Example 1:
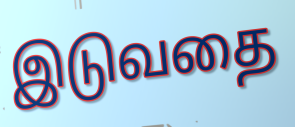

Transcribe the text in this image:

இடுவதை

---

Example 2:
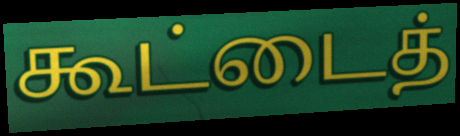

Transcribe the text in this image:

கூட்டைத்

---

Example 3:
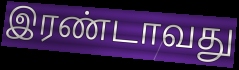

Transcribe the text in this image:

இரண்டாவது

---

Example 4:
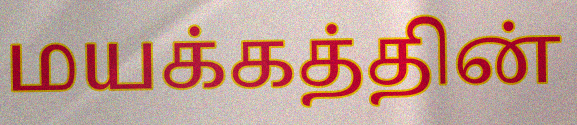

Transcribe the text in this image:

மயக்கத்தின்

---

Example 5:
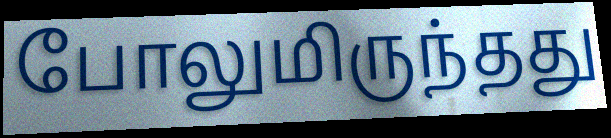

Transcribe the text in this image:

போலுமிருந்தது